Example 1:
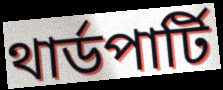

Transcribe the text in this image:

থার্ডপার্টি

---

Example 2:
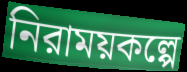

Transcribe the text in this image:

নিরাময়কল্পে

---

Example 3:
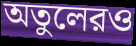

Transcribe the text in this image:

অতুলেরও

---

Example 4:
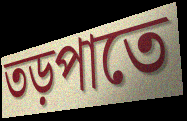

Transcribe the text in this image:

তড়পাতে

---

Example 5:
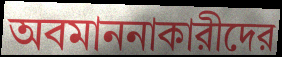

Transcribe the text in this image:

অবমাননাকারীদের